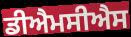
ਡੀਐਮਸੀਐਸ